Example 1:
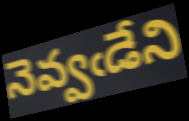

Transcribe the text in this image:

నెవ్వఁడేని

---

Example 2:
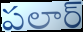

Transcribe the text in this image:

పలార్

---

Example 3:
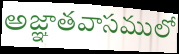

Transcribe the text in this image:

అజ్ఞాతవాసములో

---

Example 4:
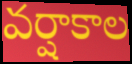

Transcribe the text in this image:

వర్షాకాల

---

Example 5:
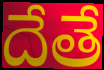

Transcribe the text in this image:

దేతే